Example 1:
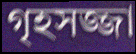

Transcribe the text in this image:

গৃহসজ্জা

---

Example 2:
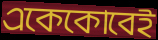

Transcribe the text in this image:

একেকোবেই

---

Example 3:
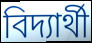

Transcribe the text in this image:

বিদ্যাৰ্থী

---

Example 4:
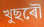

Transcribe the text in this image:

খুছৰৌ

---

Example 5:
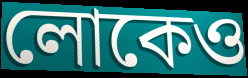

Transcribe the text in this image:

লোকেও